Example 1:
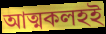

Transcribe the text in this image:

আত্মকলহই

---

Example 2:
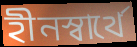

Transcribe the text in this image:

হীনস্বার্থে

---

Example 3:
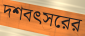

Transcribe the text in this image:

দশবৎসরের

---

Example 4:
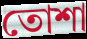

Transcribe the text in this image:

তোশা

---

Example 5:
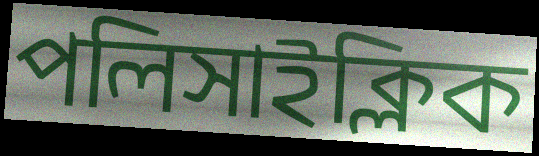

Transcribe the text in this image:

পলিসাইক্লিক